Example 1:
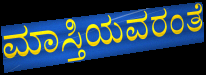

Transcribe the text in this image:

ಮಾಸ್ತಿಯವರಂತೆ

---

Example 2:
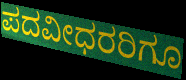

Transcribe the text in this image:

ಪದವೀಧರರಿಗೂ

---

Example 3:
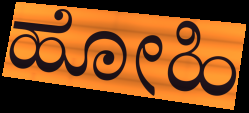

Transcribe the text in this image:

ಹೋಹಿ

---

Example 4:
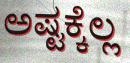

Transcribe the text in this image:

ಅಷ್ಟಕ್ಕೆಲ್ಲ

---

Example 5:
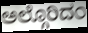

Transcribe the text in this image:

ಅಲ್ಗೊರಿದಂ